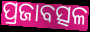
ପ୍ରଜାବତ୍ସଳ